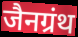
जैनग्रंथ